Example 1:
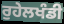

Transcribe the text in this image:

ਰੁਹੇਲਖੰਡੀ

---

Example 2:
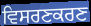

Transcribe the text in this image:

ਵਿਸਰਣਕਰਣ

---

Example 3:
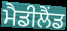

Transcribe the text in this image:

ਮੈਡੀਲੈਂਡ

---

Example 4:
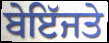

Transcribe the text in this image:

ਬੇਇੱਜਤੇ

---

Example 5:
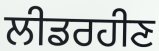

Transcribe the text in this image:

ਲੀਡਰਹੀਣ